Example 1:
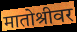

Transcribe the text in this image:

मातोश्रीवर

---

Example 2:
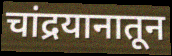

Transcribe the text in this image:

चांद्रयानातून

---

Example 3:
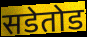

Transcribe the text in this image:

सडेतोड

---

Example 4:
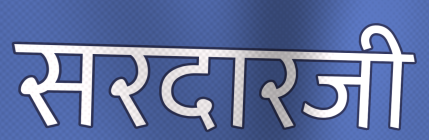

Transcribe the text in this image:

सरदारजी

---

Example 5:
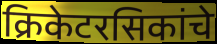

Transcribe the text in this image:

क्रिकेटरसिकांचे